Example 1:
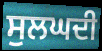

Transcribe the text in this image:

ਸੁਲਘਦੀ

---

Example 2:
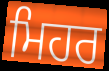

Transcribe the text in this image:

ਮਿਹਰ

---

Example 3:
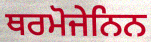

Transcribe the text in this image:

ਥਰਮੋਜੇਨਿਨ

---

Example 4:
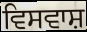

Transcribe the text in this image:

ਵਿਸਵਾਸ਼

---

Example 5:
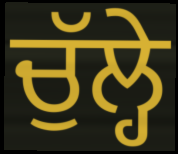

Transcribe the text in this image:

ਚੁੱਲ੍ਹੇ